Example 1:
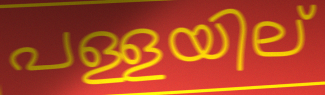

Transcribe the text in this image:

പള്ളയില്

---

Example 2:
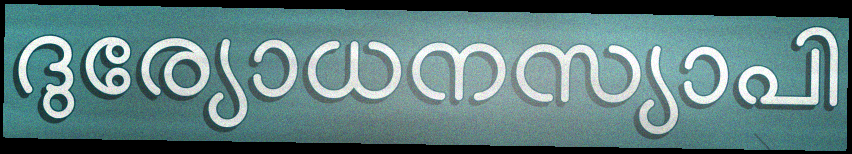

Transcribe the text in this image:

ദുര്യോധനസ്യാപി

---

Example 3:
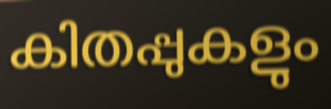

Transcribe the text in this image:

കിതപ്പുകളും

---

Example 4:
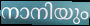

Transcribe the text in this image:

നാനിയും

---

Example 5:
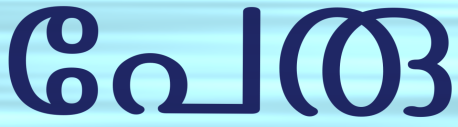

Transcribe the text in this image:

പേരു